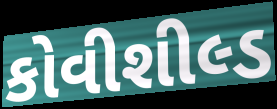
કોવીશીલ્ડ